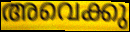
അവെക്കു